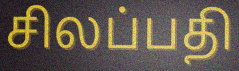
சிலப்பதி